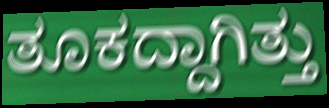
ತೂಕದ್ದಾಗಿತ್ತು